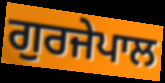
ਗੁਰਜੇਪਾਲ